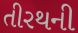
તીરથની